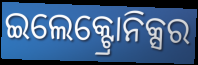
ଇଲେକ୍ଟ୍ରୋନିକ୍ସର